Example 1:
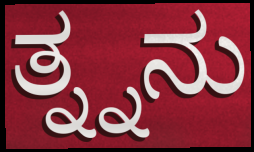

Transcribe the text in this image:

ತ್ನ್ನನು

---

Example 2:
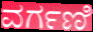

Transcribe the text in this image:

ವರ್ಗಣಿ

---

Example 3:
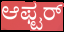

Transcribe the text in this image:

ಆಫ್ಟರ್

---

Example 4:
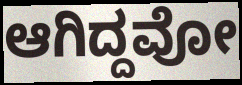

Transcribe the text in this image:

ಆಗಿದ್ದವೋ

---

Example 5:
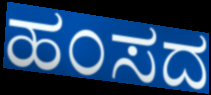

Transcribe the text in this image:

ಹಂಸದ